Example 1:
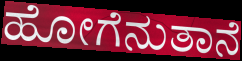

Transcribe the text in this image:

ಹೋಗೆನುತಾನೆ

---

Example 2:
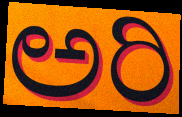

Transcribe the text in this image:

ಅರಿ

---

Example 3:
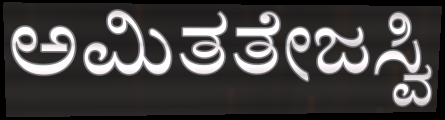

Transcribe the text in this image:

ಅಮಿತತೇಜಸ್ವಿ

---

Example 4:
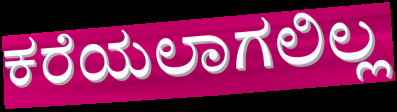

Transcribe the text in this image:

ಕರೆಯಲಾಗಲಿಲ್ಲ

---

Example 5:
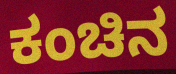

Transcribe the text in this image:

ಕಂಚಿನ